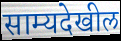
साम्यदेखील